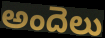
అందెలు